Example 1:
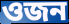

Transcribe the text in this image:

ওজন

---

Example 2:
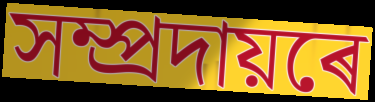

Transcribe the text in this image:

সম্প্ৰদায়ৰে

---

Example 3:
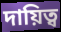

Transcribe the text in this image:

দায়িত্ব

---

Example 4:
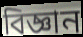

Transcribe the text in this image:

বিজ্ঞান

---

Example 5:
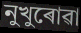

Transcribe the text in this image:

নুখুৰোৱা